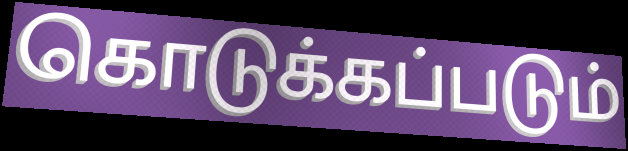
கொடுக்கப்படும்